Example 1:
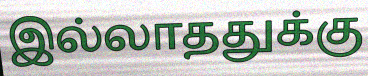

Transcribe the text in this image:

இல்லாததுக்கு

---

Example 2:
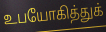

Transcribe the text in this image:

உபயோகித்துக்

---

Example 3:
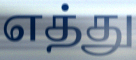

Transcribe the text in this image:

எத்து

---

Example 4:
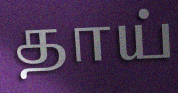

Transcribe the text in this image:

தாய்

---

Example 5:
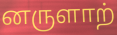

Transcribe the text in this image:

னருளாற்